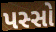
પસ્સો